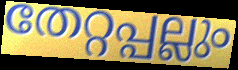
തേറ്റപ്പല്ലും